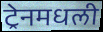
ट्रेनमधली